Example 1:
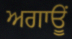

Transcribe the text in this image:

ਅਗਾਊਂ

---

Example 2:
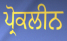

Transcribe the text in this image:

ਪ੍ਰੋਕਲੀਨ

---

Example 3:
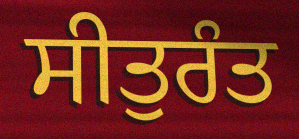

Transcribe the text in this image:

ਸੀਤੁਰੰਤ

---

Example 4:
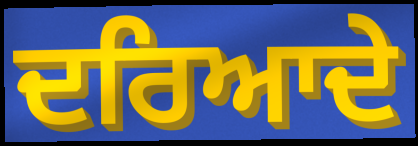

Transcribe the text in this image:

ਦਰਿਆਦੇ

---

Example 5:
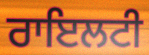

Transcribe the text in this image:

ਰਾਇਲਟੀ